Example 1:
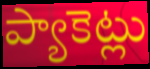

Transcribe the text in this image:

ప్యాకెట్లు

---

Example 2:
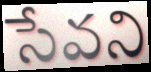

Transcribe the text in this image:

సేవని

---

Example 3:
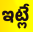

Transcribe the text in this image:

ఇట్లే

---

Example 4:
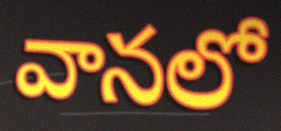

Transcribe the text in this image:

వానలో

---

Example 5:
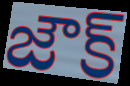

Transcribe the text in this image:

జౌక్